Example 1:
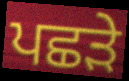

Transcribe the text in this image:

ਪਛੜੇ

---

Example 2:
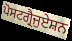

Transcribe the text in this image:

ਪੋਸਟਗ੍ਰੈਜੁਏਸ਼ਨ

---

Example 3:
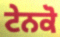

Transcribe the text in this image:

ਟੇਨਕੋ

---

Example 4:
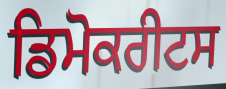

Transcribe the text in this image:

ਡਿਮੋਕਰੀਟਸ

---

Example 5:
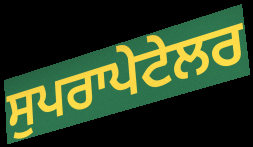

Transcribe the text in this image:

ਸੁਪਰਾਪੇਟੇਲਰ